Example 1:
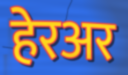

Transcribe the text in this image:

हेरअर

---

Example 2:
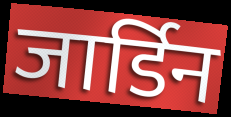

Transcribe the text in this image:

जार्डिन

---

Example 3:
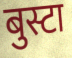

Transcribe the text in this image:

बुस्टा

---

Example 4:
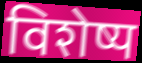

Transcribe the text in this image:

विशेष्य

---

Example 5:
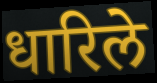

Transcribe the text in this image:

धारिले